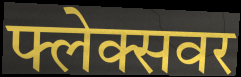
फ्लेक्सवर